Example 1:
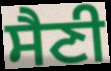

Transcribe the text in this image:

ਸੈਣੀ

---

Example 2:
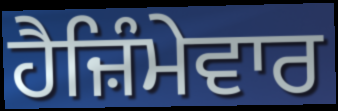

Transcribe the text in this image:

ਹੈਜ਼ਿੰਮੇਵਾਰ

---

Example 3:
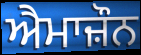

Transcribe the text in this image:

ਐਮਾਜ਼ੌਨ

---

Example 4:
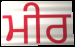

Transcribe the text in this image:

ਮੀਰ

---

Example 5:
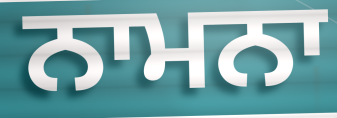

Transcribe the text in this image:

ਨਾਮਨਾ